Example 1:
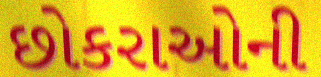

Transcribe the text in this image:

છોકરાઓની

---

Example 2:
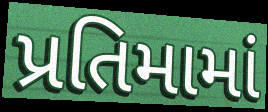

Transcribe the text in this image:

પ્રતિમામાં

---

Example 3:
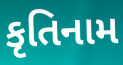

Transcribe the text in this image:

કૃતિનામ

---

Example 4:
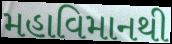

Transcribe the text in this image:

મહાવિમાનથી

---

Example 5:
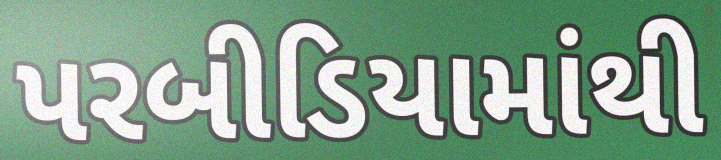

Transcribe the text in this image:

પરબીડિયામાંથી